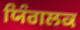
ਯਿੰਗਲਕ